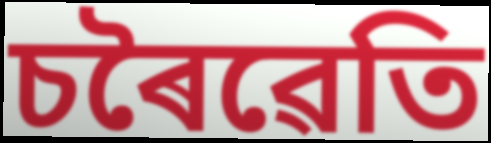
চৰৈৱেতি